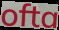
ofta